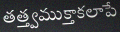
తత్త్వముక్తాకలాపే